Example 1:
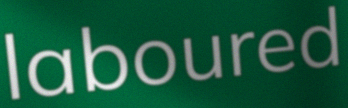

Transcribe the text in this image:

laboured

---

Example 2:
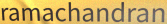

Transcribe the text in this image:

ramachandran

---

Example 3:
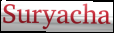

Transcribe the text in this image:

Suryacha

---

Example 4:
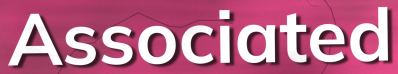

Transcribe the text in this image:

Associated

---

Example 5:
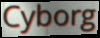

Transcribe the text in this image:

Cyborg